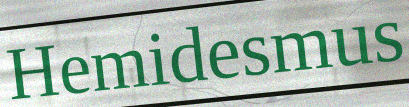
Hemidesmus